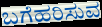
ಬಗೆಹರಿಸುವ